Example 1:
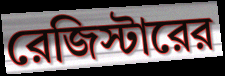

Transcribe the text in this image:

রেজিস্টারের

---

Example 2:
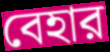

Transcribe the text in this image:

বেহার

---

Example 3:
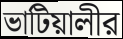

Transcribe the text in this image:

ভাটিয়ালীর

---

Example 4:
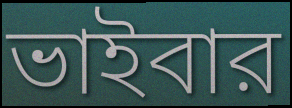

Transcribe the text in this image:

ভাইবার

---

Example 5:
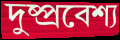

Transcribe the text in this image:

দুষ্প্রবেশ্য